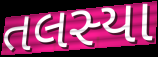
તલસ્યા